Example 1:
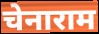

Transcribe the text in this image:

चेनाराम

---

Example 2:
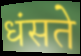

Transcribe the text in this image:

धंसते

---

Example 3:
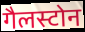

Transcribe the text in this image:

गैलस्टोन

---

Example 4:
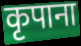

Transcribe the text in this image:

कृपाना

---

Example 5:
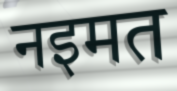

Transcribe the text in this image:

नइमत